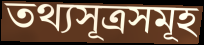
তথ্যসূত্ৰসমূহ